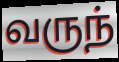
வருந்